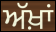
ਅੱਖ਼ਾਂ